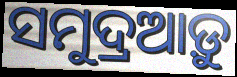
ସମୁଦ୍ରଆଡ଼ୁ